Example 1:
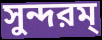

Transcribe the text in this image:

সুন্দরম্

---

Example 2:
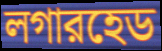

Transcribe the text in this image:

লগারহেড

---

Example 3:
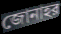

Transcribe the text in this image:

জোনাহর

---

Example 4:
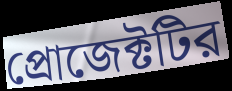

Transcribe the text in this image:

প্রোজেক্টটির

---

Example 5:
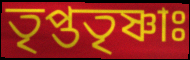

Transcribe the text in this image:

তৃপ্ততৃষ্ণাঃ